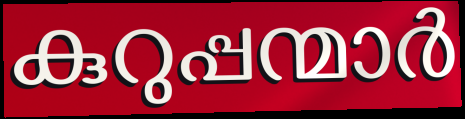
കുറുപ്പന്മാർ